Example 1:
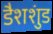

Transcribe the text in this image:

डैशशुंड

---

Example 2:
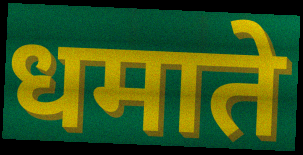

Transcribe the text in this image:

धमाते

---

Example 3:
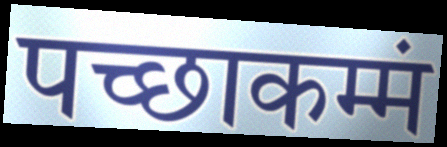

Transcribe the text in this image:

पच्छाकम्मं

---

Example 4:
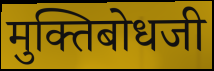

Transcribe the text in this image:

मुक्तिबोधजी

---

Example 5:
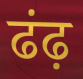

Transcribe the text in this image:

ढंढ़